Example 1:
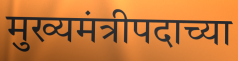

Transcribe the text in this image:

मुख्यमंत्रीपदाच्या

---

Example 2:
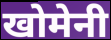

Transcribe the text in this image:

खोमेनी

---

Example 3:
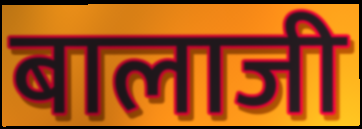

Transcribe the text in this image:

बालाजी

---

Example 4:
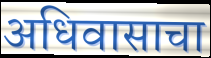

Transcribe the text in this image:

अधिवासाचा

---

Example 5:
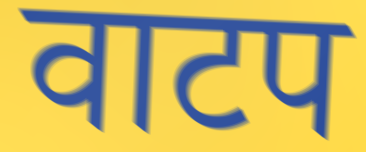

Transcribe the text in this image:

वाटप